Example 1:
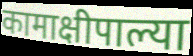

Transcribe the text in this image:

कामाक्षीपाल्या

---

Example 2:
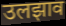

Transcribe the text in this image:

उलझाव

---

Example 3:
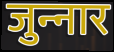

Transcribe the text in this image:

जुन्नार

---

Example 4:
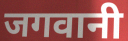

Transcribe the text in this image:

जगवानी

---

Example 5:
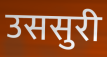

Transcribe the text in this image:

उससुरी